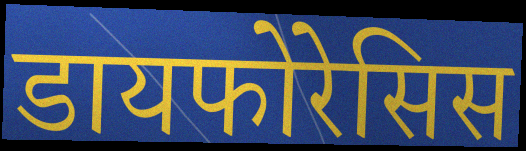
डायफोरेसिस